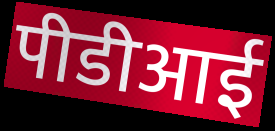
पीडीआई